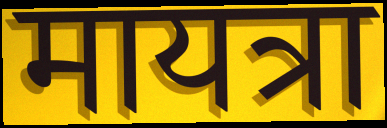
मायत्रा